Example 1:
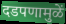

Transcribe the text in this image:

दडपणामुळें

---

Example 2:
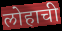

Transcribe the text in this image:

लोहाची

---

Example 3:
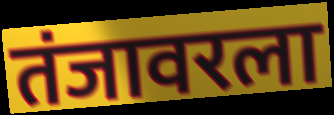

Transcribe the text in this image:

तंजावरला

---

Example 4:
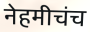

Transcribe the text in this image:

नेहमीचंच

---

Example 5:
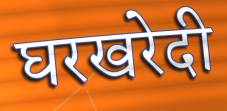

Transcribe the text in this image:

घरखरेदी